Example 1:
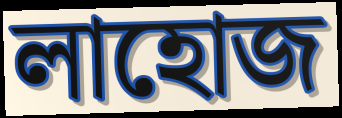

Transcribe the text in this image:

লাহোজ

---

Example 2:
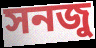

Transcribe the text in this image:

সনজু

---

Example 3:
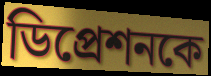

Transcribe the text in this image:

ডিপ্রেশনকে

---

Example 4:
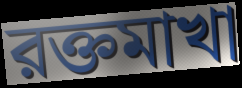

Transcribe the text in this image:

রক্তমাখা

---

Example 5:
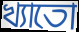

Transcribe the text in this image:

খ্যাতো